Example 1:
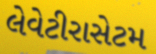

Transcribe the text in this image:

લેવેટીરાસેટમ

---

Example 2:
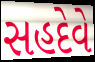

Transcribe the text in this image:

સહદેવે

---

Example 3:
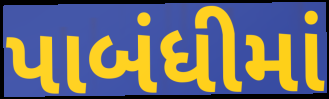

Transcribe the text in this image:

પાબંધીમાં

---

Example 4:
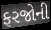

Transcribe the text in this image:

ફરજોની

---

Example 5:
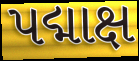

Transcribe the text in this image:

પદ્માક્ષ